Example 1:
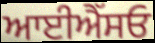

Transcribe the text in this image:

ਆਈਐੱਸਓ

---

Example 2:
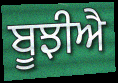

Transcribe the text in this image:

ਬੂਝੀਐ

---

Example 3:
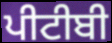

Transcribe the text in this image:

ਪੀਟੀਬੀ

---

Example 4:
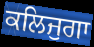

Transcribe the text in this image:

ਕਲਿਜੁਗਾ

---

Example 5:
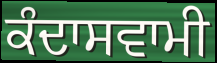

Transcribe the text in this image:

ਕੰਦਾਸਵਾਮੀ